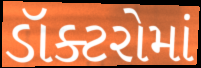
ડૉક્ટરોમાં